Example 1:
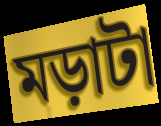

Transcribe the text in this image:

মড়াটা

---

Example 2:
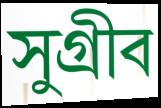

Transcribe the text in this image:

সুগ্রীব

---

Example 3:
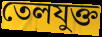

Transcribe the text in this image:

তেলযুক্ত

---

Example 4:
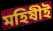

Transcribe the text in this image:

মহিষীই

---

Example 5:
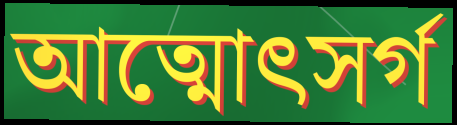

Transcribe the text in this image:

আত্মোৎসর্গ